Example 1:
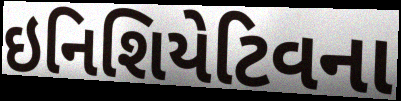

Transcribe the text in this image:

ઇનિશિયેટિવના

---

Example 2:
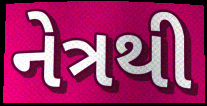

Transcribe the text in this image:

નેત્રથી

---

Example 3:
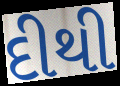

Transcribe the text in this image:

દીથી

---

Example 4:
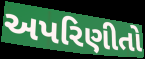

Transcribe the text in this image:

અપરિણીતો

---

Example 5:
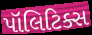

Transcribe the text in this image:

પૉલિટિક્સ